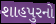
શાહપુરનો